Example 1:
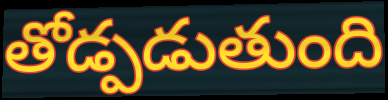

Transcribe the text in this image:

తోడ్పడుతుంది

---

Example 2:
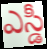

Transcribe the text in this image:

ఎస్డీ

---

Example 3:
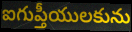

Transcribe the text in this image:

ఐగుప్తీయులకును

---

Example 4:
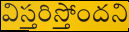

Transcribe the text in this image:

విస్తరిస్తోందని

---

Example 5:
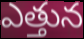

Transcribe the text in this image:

ఎత్తున